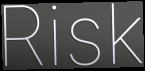
Risk